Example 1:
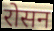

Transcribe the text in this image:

रोसन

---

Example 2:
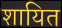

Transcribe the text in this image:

शायित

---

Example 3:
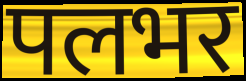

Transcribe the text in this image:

पलभर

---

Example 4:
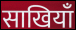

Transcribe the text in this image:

साखियाँ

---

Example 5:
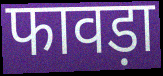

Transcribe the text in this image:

फावड़ा